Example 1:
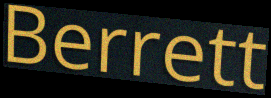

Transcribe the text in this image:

Berrett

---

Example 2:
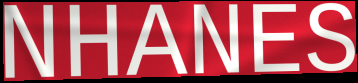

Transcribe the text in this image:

NHANES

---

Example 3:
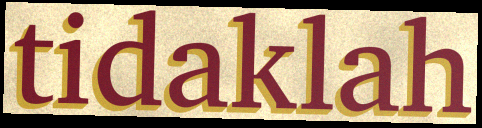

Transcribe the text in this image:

tidaklah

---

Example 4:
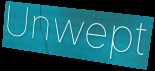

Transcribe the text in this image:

Unwept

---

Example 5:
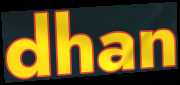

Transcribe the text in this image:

dhan